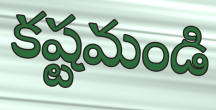
కష్టమండి